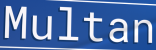
Multan